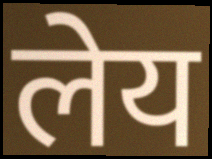
लेय